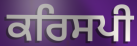
ਕਰਿਸਪੀ